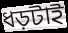
ধড়টাই